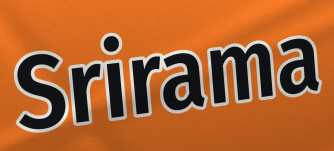
Srirama